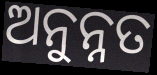
ଅନୁନ୍ନତ